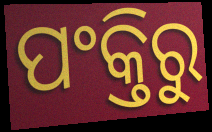
ପଂକ୍ତିରୁ